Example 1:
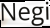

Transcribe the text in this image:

Negi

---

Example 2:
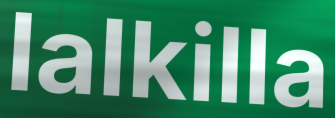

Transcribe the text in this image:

lalkilla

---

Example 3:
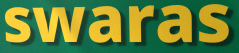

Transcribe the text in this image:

swaras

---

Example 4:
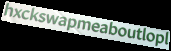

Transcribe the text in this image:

hxckswapmeaboutlopl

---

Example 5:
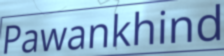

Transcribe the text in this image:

Pawankhind